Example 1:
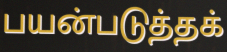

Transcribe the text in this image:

பயன்படுத்தக்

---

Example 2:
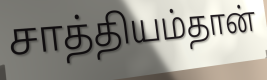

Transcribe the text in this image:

சாத்தியம்தான்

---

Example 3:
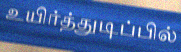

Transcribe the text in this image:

உயிர்த்துடிப்பில்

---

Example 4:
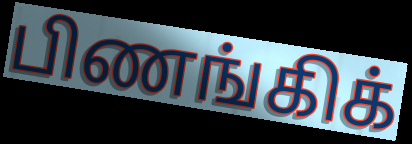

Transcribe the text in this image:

பிணங்கிக்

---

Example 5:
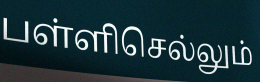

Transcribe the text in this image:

பள்ளிசெல்லும்